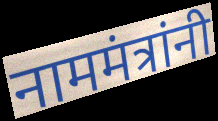
नाममंत्रांनी